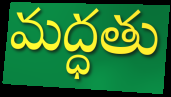
మద్ధతు